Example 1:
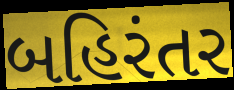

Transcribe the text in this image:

બહિરંતર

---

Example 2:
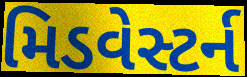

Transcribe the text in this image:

મિડવેસ્ટર્ન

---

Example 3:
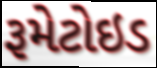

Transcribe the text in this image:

રૂમેટોઇડ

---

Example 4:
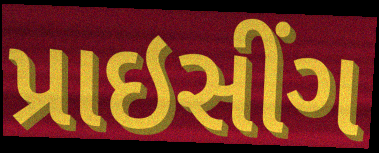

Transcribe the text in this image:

પ્રાઇસીંગ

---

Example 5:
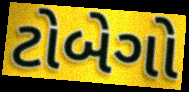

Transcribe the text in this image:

ટોબેગો